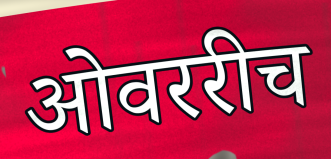
ओवररीच